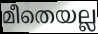
മീതെയല്ല